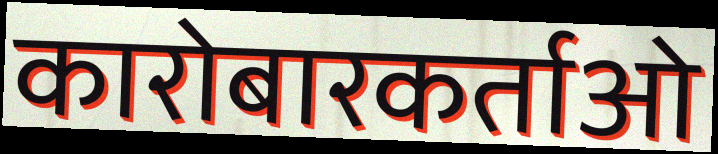
कारोबारकर्ताओ